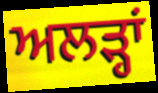
ਅਲੜ੍ਹਾਂ